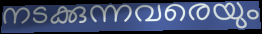
നടക്കുന്നവരെയും